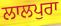
ਲਾਲਪੁਰਾ